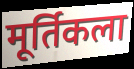
मूर्तिकला